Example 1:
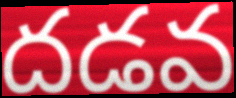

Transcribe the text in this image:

దడవ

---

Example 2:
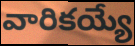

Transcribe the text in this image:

వారికయ్యే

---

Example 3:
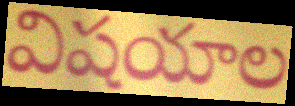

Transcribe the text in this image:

విషయాల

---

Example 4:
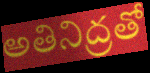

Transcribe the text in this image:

అతినిద్రతో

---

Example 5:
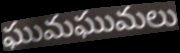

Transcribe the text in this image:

ఘుమఘుమలు